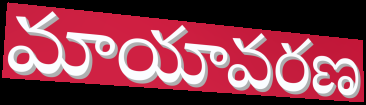
మాయావరణ